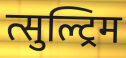
त्सुल्ट्रिम